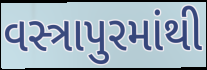
વસ્ત્રાપુરમાંથી